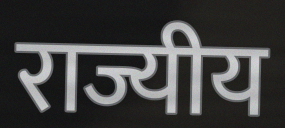
राज्यीय